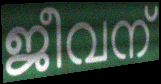
ജീവന്